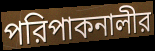
পরিপাকনালীর